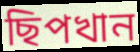
ছিপখান